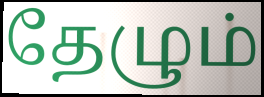
தேழும்